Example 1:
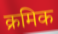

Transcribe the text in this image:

क्रमिक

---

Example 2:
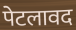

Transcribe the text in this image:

पेटलावद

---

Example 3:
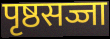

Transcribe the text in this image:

पृष्ठसज्जा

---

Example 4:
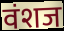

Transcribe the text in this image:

वंशज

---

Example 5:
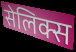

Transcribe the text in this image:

सेलिक्स